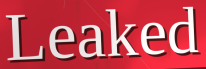
Leaked